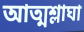
আত্মশ্লাঘা